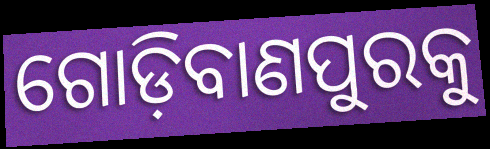
ଗୋଡ଼ିବାଣପୁରକୁ